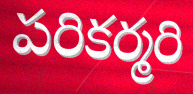
పరికర్మరి